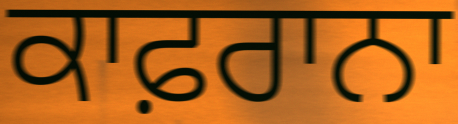
ਕਾਫ਼ਰਾਨਾ